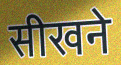
सीखने